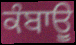
ਕੰਬਾਊੁ